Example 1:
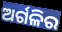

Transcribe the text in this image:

ଅର୍ଗଳିର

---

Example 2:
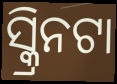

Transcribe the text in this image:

ସ୍କ୍ରିନଟା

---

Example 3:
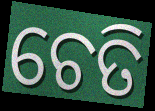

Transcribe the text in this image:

ଚେତି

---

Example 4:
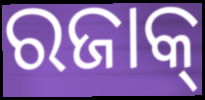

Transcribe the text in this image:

ରଜାକ୍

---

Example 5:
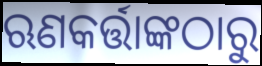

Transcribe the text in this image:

ଋଣକର୍ତ୍ତାଙ୍କଠାରୁ